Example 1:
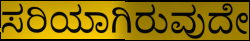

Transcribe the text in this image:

ಸರಿಯಾಗಿರುವುದೇ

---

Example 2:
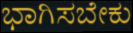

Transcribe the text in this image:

ಭಾಗಿಸಬೇಕು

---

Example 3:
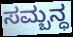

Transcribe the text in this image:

ಸಮ್ಬನ್ಧ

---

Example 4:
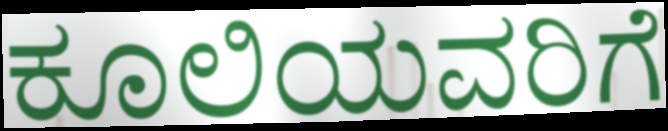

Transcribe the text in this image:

ಕೂಲಿಯವರಿಗೆ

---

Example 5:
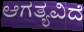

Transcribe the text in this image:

ಆಗತ್ಯವಿದೆ